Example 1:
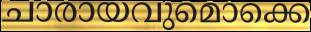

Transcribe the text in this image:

ചാരായവുമൊക്കെ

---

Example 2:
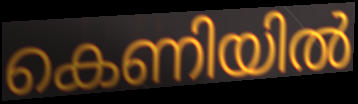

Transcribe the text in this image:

കെണിയിൽ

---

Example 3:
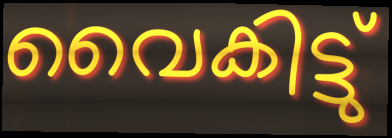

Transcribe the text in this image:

വൈകിട്ടു്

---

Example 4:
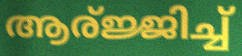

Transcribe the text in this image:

ആര്ജ്ജിച്ച്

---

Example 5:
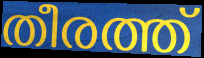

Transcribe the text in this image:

തീരത്ത്